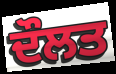
ਦੌਲਤ